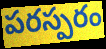
పరస్పరం